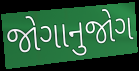
જોગાનુજોગ